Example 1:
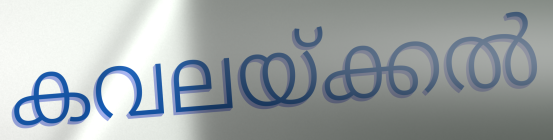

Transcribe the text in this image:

കവലയ്ക്കൽ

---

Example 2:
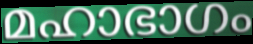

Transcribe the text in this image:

മഹാഭാഗം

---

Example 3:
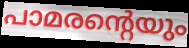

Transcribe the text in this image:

പാമരന്റെയും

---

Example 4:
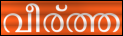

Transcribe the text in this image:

വീര്ത്ത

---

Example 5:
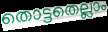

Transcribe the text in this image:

തൊട്ടതെല്ലാം